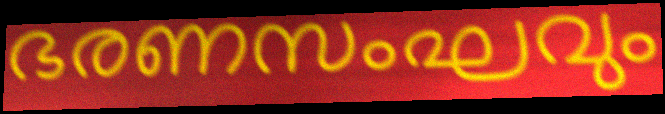
ഭരണസംഘവും